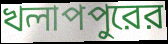
খলাপপুরের